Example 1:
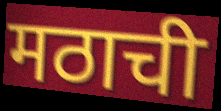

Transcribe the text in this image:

मठाची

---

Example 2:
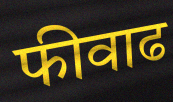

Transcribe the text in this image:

फीवाढ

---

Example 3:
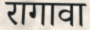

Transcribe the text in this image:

रागावा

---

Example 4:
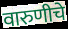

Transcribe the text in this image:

वारुणीचे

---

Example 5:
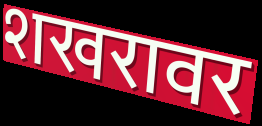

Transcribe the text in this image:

शखरावर